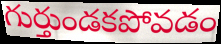
గుర్తుండకపోవడం